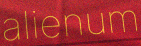
alienum